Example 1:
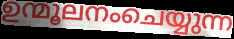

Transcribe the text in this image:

ഉന്മൂലനംചെയ്യുന്ന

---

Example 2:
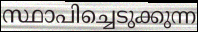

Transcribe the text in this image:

സ്ഥാപിച്ചെടുക്കുന്ന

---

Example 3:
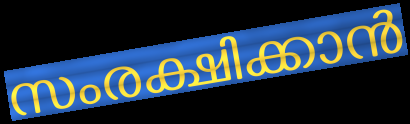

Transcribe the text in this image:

സംരക്ഷിക്കാൻ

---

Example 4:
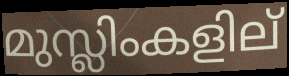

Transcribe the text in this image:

മുസ്ലിംകളില്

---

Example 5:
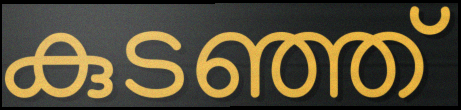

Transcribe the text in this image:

കുടഞ്ഞ്